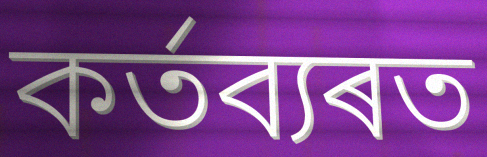
কৰ্তব্যৰত